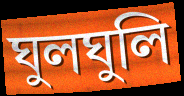
ঘুলঘুলি